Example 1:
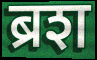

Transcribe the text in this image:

ब्रश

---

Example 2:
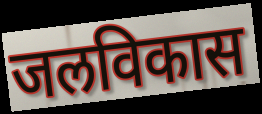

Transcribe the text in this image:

जलविकास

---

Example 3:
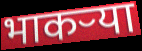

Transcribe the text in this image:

भाकऱ्या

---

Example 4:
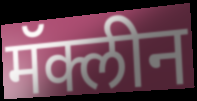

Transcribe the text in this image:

मॅक्लीन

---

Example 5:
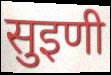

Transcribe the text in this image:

सुइणी